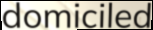
domiciled